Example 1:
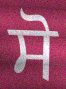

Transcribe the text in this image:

ਸੋ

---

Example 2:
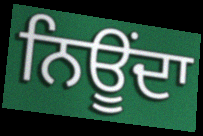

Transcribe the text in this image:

ਨਿਊਂਦਾ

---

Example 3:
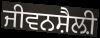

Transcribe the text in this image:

ਜੀਵਨਸ਼ੈਲ਼ੀ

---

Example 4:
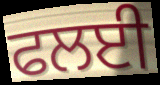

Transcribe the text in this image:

ਫਲਈ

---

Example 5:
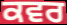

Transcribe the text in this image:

ਕਵਰ